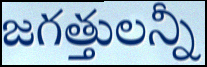
జగత్తులన్నీ